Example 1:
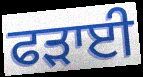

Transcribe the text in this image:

ਫੜਾਈ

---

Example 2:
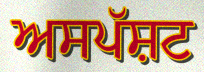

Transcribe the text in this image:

ਅਸਪੱਸ਼ਟ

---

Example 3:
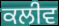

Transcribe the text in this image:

ਕਲੀਵ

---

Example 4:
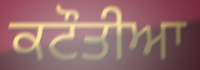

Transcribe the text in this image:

ਕਟੌਤੀਆ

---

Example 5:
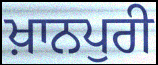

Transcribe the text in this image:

ਖ਼ਾਨਪੁਰੀ